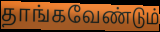
தாங்கவேண்டும்